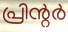
പ്രിന്റർ